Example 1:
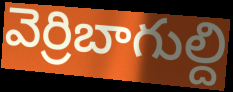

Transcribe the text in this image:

వెర్రిబాగుల్ది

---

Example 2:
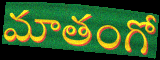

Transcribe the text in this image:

మాతంగో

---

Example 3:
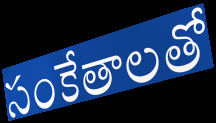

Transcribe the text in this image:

సంకేతాలతో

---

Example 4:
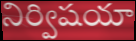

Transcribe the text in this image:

నిర్విషయా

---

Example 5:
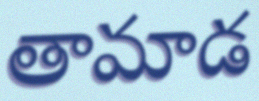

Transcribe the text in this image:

తామాడ